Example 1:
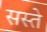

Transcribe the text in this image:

सस्‍ते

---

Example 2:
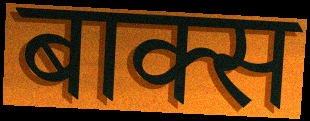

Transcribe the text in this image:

बाक्स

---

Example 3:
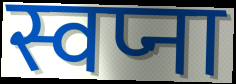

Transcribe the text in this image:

स्‍वप्‍ना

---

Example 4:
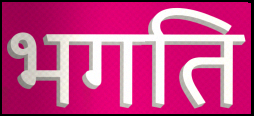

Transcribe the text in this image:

भगति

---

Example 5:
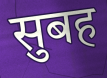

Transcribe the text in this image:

सुबह